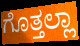
ಗೊತ್ತಲ್ಲಾ